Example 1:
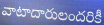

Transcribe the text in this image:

వాటాదారులందరికీ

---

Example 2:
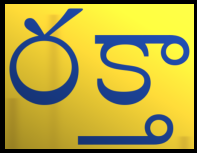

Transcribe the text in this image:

రక్తా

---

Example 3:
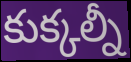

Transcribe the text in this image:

కుక్కల్నీ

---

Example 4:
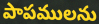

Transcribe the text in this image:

పాపములను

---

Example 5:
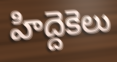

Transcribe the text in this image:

హిద్దెకెలు